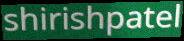
shirishpatel